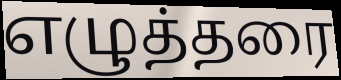
எழுத்தரை